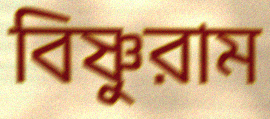
বিষ্ণুরাম